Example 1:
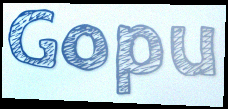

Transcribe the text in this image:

Gopu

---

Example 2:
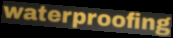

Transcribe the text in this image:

waterproofing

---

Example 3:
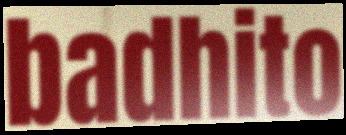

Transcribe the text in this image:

badhito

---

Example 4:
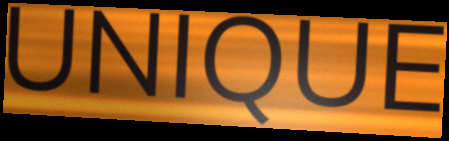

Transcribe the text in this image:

UNIQUE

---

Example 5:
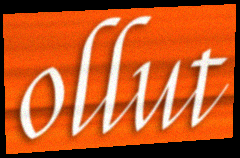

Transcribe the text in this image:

ollut